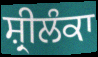
ਸ਼੍ਰੀਲੰਕਾ